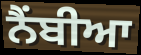
ਨੈਂਬੀਆ